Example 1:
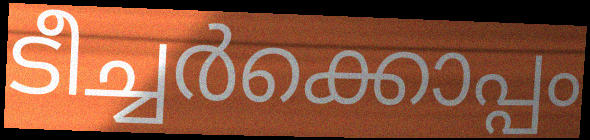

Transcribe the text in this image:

ടീച്ചർക്കൊപ്പം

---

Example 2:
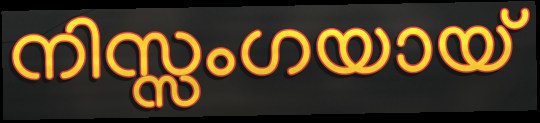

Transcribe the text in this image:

നിസ്സംഗയായ്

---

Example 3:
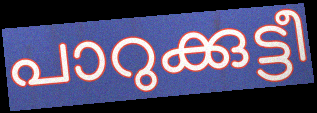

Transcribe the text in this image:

പാറുക്കുട്ടീ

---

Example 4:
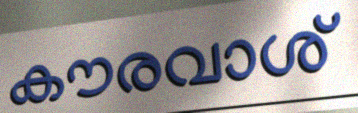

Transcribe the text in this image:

കൗരവാശ്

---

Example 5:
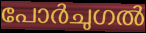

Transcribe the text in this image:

പോർചുഗൽ